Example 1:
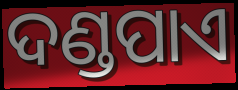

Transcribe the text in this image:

ଦଣ୍ଡପାଏ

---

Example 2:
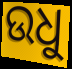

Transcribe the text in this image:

ଉଧୁ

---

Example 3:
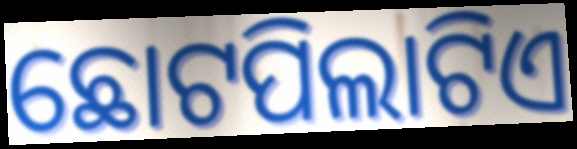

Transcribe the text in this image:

ଛୋଟପିଲାଟିଏ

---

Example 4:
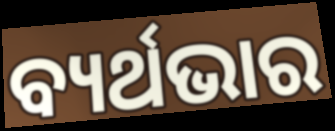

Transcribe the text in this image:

ବ୍ୟର୍ଥଭାର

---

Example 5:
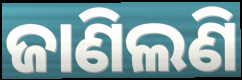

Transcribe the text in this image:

ଜାଣିଲଣି